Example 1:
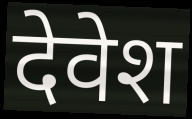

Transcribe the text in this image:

देवेश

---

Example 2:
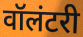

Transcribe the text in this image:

वॉलंटरी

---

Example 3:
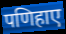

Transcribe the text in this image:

पणिहाए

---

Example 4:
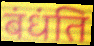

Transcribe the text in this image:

बंधंति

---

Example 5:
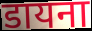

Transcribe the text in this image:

डायना